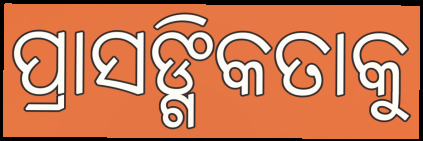
ପ୍ରାସଙ୍ଗିକତାକୁ